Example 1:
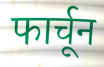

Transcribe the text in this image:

फार्चून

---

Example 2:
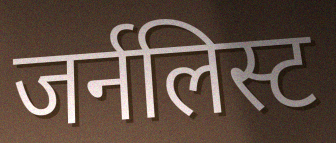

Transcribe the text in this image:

जर्नलिस्ट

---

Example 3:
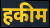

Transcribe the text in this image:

हकीम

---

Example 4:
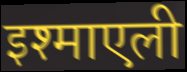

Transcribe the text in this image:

इश्माएली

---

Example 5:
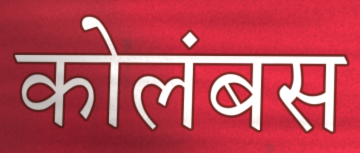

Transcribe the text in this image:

कोलंबस